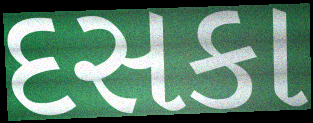
દસકા